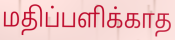
மதிப்பளிக்காத